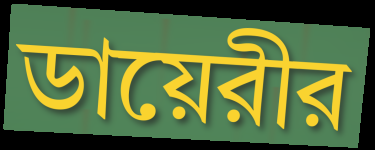
ডায়েরীর